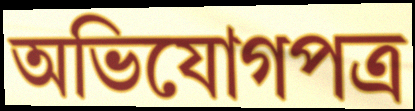
অভিযোগপত্র